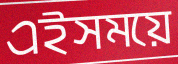
এইসময়ে